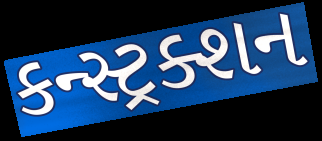
કન્સ્ટ્રક્શન